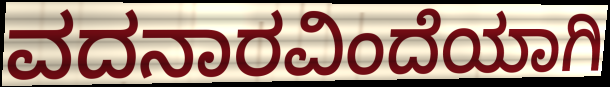
ವದನಾರವಿಂದೆಯಾಗಿ